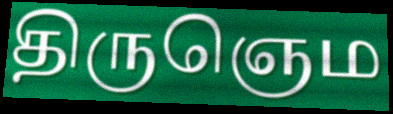
திருஞெம